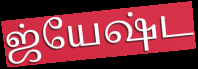
ஜ்யேஷ்ட